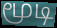
மூடி